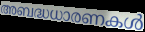
അബദ്ധധാരണകൾ